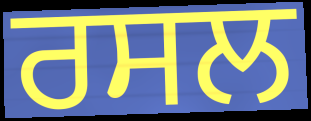
ਰਸਲ